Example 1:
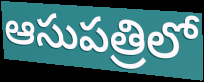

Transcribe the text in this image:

ఆసుపత్రిలో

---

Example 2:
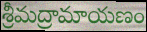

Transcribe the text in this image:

శ్రీమద్రామాయణం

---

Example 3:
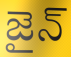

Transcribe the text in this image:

జైన్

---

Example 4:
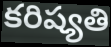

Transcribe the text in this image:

కరిష్యతి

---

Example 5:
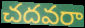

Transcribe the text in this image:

చదవరా